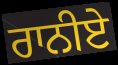
ਰਾਨੀਏ